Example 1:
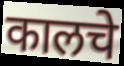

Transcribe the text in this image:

कालचे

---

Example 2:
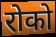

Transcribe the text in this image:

रोको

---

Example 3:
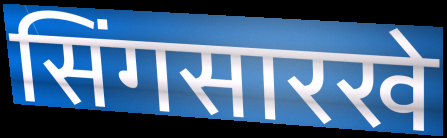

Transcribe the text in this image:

सिंगसारखे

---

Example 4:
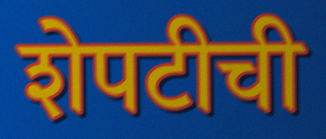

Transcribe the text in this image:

शेपटीची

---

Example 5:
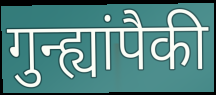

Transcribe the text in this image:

गुन्ह्यांपैकी